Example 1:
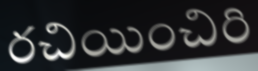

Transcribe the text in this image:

రచియించిరి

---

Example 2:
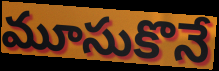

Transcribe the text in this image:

మూసుకొనే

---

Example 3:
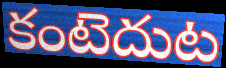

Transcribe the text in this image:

కంటెదుట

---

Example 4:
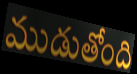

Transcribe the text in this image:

ముడుతోంది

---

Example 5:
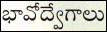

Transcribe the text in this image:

భావోద్వేగాలు